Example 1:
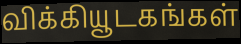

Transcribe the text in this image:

விக்கியூடகங்கள்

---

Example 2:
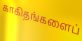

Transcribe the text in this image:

காகிதங்களைப்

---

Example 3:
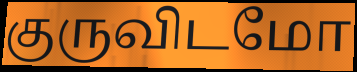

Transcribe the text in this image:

குருவிடமோ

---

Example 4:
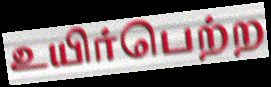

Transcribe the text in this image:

உயிர்பெற்ற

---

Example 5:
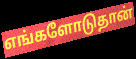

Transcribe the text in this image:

எங்களோடுதான்